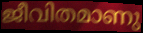
ജീവിതമാണു